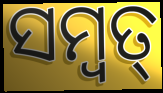
ସମ୍ବତ୍